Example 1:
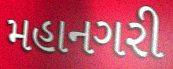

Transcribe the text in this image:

મહાનગરી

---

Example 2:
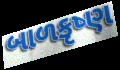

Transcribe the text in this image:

બાળકૃષ્ણ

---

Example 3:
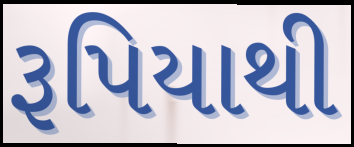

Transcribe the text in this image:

રૂપિયાથી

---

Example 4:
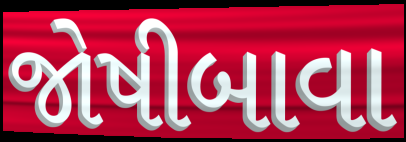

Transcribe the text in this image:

જોષીબાવા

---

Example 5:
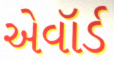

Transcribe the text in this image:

એવૉર્ડ